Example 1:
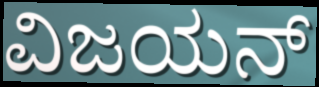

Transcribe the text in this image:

ವಿಜಯನ್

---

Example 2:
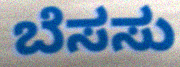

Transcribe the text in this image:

ಬೆಸಸು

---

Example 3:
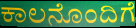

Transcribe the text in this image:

ಕಾಲನೊಂದಿಗೆ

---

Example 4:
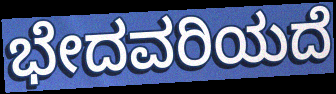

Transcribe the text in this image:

ಭೇದವರಿಯದೆ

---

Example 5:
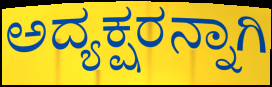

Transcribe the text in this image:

ಅದ್ಯಕ್ಷರನ್ನಾಗಿ